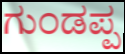
ಗುಂಡಪ್ಪ